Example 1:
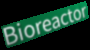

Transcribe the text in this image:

Bioreactor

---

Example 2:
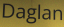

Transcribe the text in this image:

Daglan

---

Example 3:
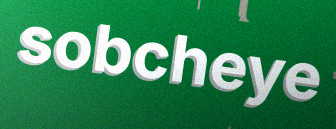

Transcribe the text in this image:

sobcheye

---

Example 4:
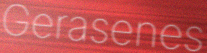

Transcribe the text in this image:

Gerasenes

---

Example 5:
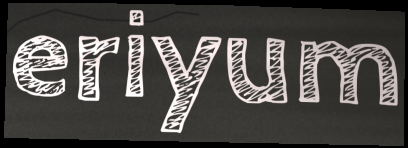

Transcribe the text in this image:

eriyum